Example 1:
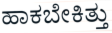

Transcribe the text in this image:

ಹಾಕಬೇಕಿತ್ತು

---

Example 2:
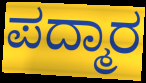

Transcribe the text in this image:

ಪದ್ಮಾರ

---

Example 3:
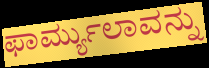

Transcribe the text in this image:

ಫಾರ್ಮ್ಯುಲಾವನ್ನು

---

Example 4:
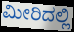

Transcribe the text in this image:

ಮೀರಿದಲ್ಲಿ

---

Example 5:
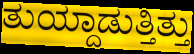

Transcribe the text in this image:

ತುಯ್ದಾಡುತ್ತಿತ್ತು